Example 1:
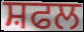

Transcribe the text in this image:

ਸ਼ਫਲ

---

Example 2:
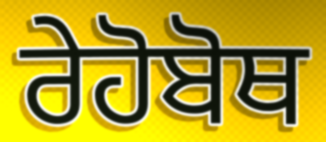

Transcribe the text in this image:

ਰੇਹੋਬੋਥ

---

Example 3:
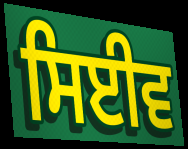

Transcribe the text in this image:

ਸਿਈਵ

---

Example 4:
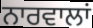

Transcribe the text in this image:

ਨਾਰਵਾਲਾਂ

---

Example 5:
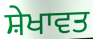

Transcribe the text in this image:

ਸ਼ੇਖਾਵਤ